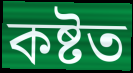
কষ্টত